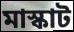
মাস্কাট